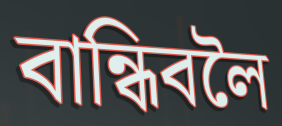
বান্ধিবলৈ